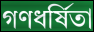
গণধর্ষিতা